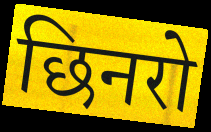
छिनरो